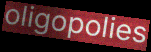
oligopolies